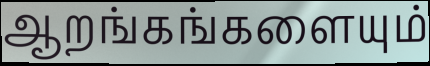
ஆறங்கங்களையும்